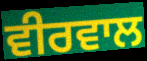
ਵੀਰਵਾਲ